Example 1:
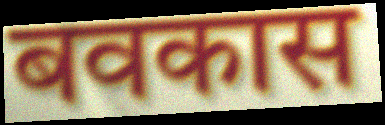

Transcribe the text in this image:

बवकास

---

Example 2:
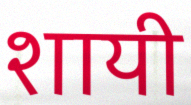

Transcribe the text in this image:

शायी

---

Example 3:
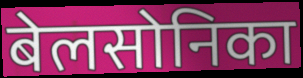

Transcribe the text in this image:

बेलसोनिका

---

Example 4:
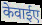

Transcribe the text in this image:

केवाईए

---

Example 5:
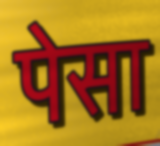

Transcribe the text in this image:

पेसा